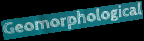
Geomorphological